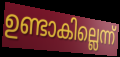
ഉണ്ടാകില്ലെന്ന്